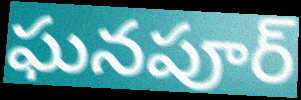
ఘనపూర్